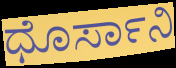
ಧೊರ್ಸಾನಿ